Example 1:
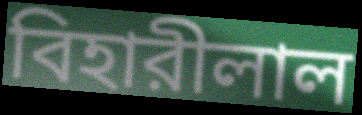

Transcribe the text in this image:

বিহারীলাল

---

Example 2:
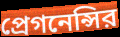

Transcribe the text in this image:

প্রেগনেন্সির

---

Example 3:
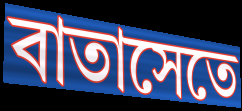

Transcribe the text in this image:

বাতাসেতে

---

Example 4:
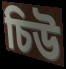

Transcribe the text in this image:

চিউ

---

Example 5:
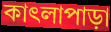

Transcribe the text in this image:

কাৎলাপাড়া